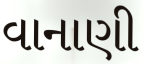
વાનાણી